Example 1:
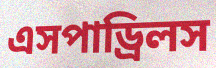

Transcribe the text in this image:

এসপাড্রিলস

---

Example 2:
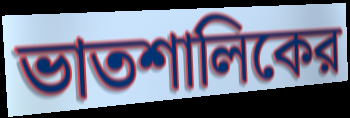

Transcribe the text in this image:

ভাতশালিকের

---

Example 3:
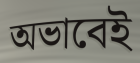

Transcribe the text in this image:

অভাবেই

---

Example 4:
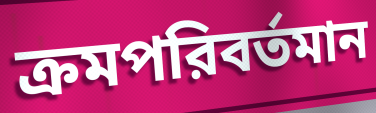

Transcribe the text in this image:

ক্রমপরিবর্তমান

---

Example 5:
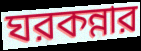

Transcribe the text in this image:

ঘরকন্নার